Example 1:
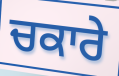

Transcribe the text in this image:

ਚਕਾਰੇ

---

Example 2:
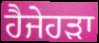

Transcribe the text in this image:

ਹੈਜੇਹੜਾ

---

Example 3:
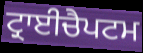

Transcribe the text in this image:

ਟ੍ਰਾਈਚੈਪਟਮ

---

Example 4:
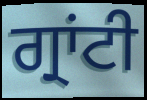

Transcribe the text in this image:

ਗ੍ਰਾਂਟੀ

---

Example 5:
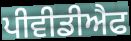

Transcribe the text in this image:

ਪੀਵੀਡੀਐਫ